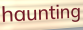
haunting